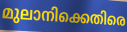
മുലാനിക്കെതിരെ